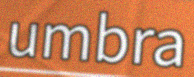
umbra